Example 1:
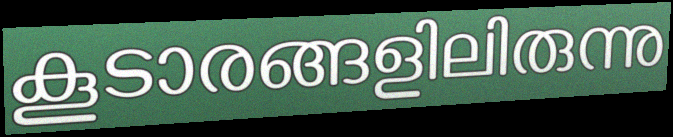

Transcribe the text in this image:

കൂടാരങ്ങളിലിരുന്നു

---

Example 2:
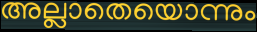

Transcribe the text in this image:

അല്ലാതെയൊന്നും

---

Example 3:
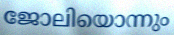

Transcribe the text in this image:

ജോലിയൊന്നും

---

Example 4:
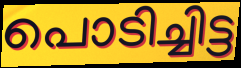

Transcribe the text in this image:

പൊടിച്ചിട്ട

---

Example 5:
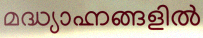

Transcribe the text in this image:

മദ്ധ്യാഹ്നങ്ങളിൽ